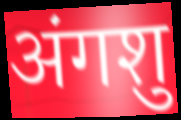
अंगशु